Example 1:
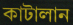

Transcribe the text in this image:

কাটালান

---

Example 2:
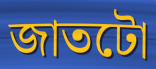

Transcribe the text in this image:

জাতটো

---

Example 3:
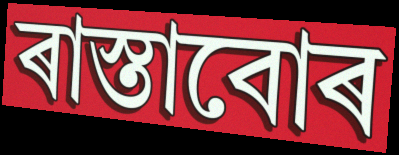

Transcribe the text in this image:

ৰাস্তাবোৰ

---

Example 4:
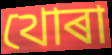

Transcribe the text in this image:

থোৰা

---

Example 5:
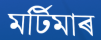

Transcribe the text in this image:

মৰ্টিমাৰ